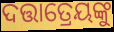
ଦତ୍ତାତ୍ରେୟଙ୍କୁ